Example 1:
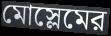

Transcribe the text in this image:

মোস্লেমের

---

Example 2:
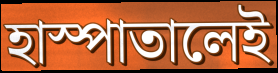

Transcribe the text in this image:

হাস্পাতালেই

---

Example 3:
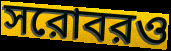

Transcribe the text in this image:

সরোবরও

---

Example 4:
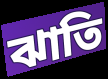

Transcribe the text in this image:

ঝাতি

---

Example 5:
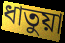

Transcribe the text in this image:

ধাতুয়া